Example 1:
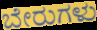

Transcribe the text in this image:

ಬೇರುಗಳು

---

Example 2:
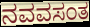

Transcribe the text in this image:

ನವವಸಂತ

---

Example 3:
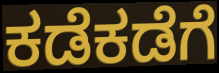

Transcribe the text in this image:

ಕಡೆಕಡೆಗೆ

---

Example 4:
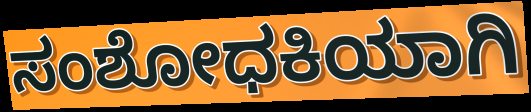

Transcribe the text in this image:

ಸಂಶೋಧಕಿಯಾಗಿ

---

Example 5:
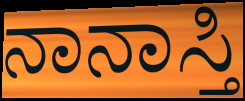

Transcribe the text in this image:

ನಾನಾಸ್ತಿ